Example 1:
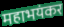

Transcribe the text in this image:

महाभयंकर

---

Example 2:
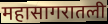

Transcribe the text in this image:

महासागरातली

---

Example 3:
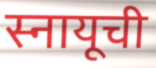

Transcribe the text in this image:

स्नायूची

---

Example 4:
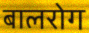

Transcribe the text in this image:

बालरोग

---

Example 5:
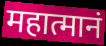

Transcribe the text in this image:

महात्मानं